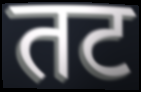
तट